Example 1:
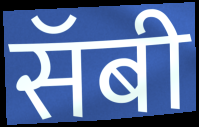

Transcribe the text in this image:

सॅबी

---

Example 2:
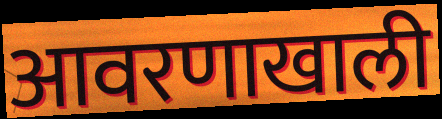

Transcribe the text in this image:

आवरणाखाली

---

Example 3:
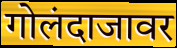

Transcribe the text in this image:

गोलंदाजावर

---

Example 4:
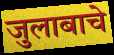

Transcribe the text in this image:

जुलाबाचे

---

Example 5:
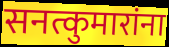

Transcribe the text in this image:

सनत्कुमारांना